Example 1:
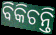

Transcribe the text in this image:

ବିକିଚନ୍ତି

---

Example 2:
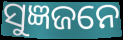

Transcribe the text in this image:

ସୁଜ୍ଞଜନେ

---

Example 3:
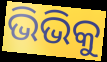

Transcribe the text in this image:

ଭିଭିକୁ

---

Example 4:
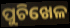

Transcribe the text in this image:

ପୁଚିଖେଳ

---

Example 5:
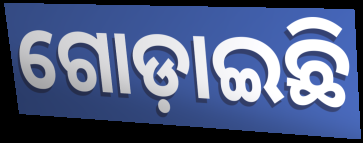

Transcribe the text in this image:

ଗୋଡ଼ାଇଛି